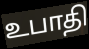
உபாதி